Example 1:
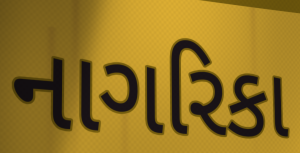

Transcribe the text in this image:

નાગરિકા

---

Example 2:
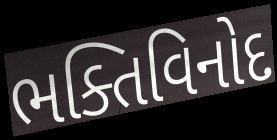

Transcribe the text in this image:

ભક્તિવિનોદ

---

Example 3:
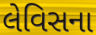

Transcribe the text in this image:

લેવિસના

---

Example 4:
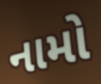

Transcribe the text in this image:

નામો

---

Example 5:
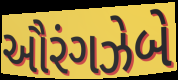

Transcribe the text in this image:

ઔરંગઝેબે